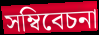
সম্বিবেচনা